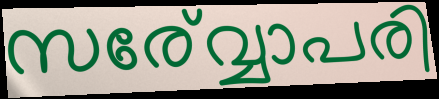
സര്വ്വോപരി